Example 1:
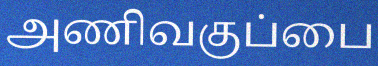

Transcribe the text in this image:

அணிவகுப்பை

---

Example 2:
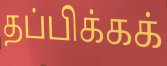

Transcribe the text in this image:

தப்பிக்கக்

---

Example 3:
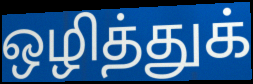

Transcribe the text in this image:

ஒழித்துக்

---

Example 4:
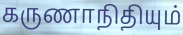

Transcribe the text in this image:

கருணாநிதியும்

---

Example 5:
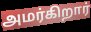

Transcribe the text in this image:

அமர்கிறார்